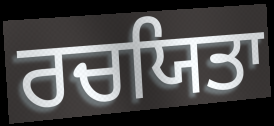
ਰਚਯਿਤਾ